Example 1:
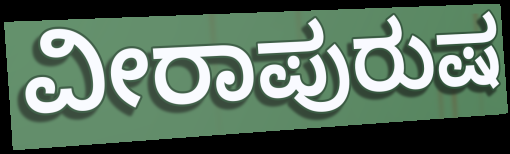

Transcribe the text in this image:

ವೀರಾಪುರುಷ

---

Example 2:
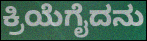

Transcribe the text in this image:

ಕ್ರಿಯೆಗೈದನು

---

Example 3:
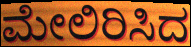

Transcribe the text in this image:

ಮೇಲಿರಿಸಿದ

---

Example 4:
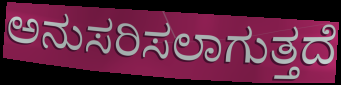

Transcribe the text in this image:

ಅನುಸರಿಸಲಾಗುತ್ತದೆ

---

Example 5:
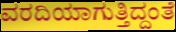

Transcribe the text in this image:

ವರದಿಯಾಗುತ್ತಿದ್ದಂತೆ